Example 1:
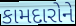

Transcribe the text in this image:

કામદારોને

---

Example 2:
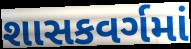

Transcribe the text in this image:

શાસકવર્ગમાં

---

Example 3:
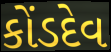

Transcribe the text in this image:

કોંડદેવ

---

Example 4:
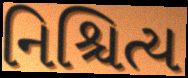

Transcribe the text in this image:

નિશ્ચિત્ય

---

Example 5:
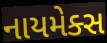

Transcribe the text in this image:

નાયમેક્સ